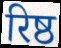
रिष्ठ